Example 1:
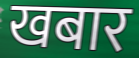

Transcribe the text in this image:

खबार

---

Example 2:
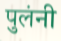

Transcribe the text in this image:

पुलंनी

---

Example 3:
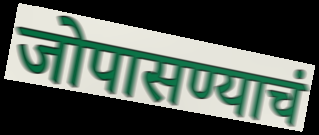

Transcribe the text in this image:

जोपासण्याचं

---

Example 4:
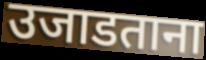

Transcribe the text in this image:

उजाडताना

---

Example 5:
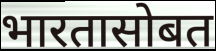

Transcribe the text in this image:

भारतासोबत